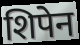
शिपेन